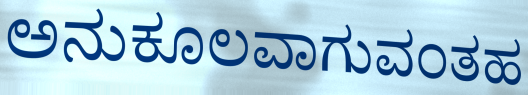
ಅನುಕೂಲವಾಗುವಂತಹ